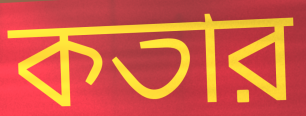
কতার